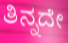
ತಿನ್ನದೇ